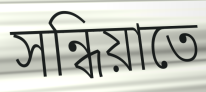
সন্ধিয়াতে